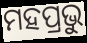
ମହପ୍ରଭୁ